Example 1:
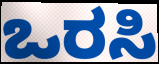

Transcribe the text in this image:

ಒರಸಿ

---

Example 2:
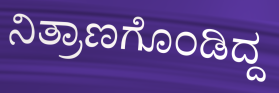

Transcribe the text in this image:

ನಿತ್ರಾಣಗೊಂಡಿದ್ದ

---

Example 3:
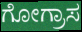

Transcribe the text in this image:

ಗೋಗ್ರಾಸ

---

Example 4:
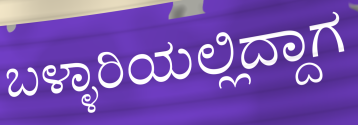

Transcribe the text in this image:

ಬಳ್ಳಾರಿಯಲ್ಲಿದ್ದಾಗ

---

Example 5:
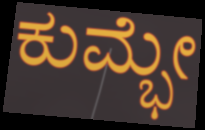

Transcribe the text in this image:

ಕುಮ್ಭೇ